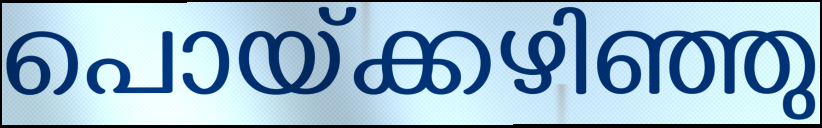
പൊയ്‌ക്കഴിഞ്ഞു